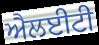
ਐਲਈਟੀ